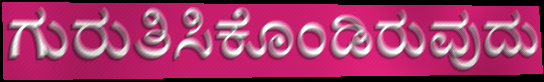
ಗುರುತಿಸಿಕೊಂಡಿರುವುದು